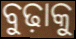
ବୁଢ଼ାକୁ